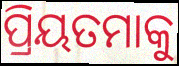
ପ୍ରିୟତମାକୁ